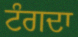
ਟੰਗਦਾ